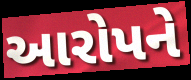
આરોપને